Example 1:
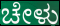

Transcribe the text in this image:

ಚೇಳು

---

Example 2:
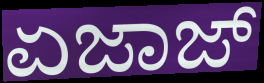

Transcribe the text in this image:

ಏಜಾಜ್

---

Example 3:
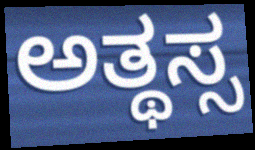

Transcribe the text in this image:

ಅತ್ಥಸ್ಸ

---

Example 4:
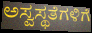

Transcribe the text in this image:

ಅಸ್ವಸ್ಥತೆಗಳಿಗೆ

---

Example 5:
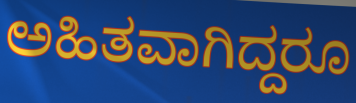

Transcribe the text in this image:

ಅಹಿತವಾಗಿದ್ದರೂ